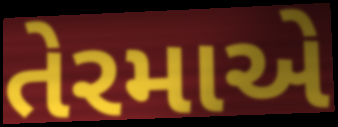
તેરમાએ